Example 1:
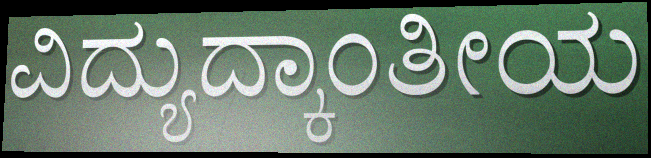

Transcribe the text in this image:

ವಿದ್ಯುದ್ಕಾಂತೀಯ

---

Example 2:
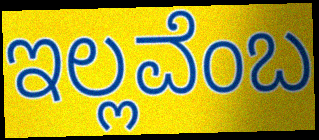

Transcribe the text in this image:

ಇಲ್ಲವೆಂಬ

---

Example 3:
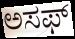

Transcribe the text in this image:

ಅಸಫ್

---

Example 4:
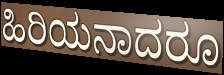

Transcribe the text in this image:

ಹಿರಿಯನಾದರೂ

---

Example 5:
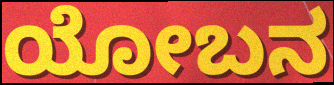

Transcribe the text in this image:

ಯೋಬನ